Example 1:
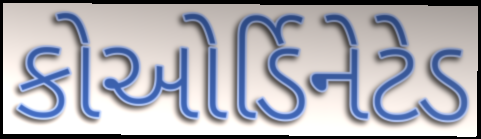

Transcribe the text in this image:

કોઓર્ડિનેટેડ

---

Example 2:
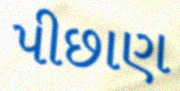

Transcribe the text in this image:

પીછાણ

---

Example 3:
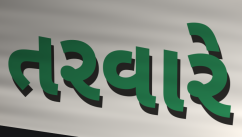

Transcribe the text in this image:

તરવારે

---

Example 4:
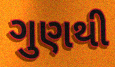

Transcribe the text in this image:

ગુણથી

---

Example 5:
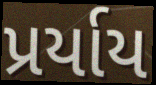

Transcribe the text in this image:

પ્રર્યાય